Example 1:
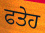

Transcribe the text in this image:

ਫਤੇਹ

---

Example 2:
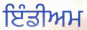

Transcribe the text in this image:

ਇੰਡੀਅਮ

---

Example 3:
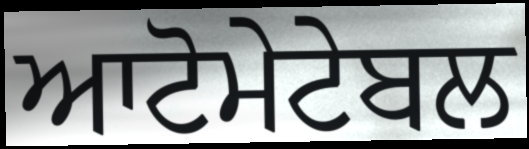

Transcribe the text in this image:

ਆਟੋਮੇਟੇਬਲ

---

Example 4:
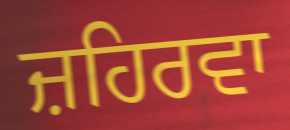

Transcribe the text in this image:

ਜ਼ਹਿਰਵਾ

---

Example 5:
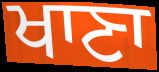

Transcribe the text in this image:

ਖਾਣਾ